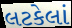
લટકેલાં